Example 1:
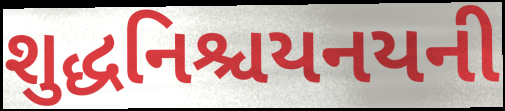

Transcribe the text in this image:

શુદ્ધનિશ્ચયનયની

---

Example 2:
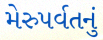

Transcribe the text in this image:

મેરુપર્વતનું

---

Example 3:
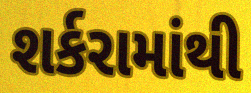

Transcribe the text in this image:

શર્કરામાંથી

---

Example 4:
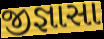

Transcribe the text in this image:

જીજ્ઞાસા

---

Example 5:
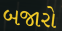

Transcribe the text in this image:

બજારો